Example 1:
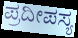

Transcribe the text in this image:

ಪ್ರದೀಪಸ್ಯ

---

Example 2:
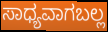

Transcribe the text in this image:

ಸಾಧ್ಯವಾಗಬಲ್ಲ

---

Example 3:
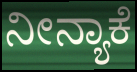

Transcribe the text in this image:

ನೀನ್ಯಾಕೆ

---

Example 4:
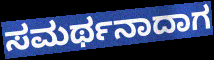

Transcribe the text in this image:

ಸಮರ್ಥನಾದಾಗ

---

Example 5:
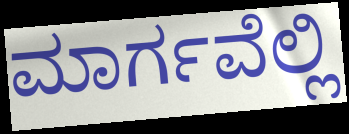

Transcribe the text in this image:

ಮಾರ್ಗವೆಲ್ಲಿ